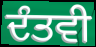
ਦੰਤਵੀ